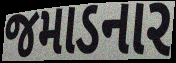
જમાડનાર